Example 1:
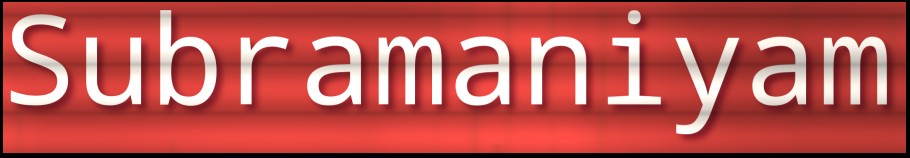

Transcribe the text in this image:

Subramaniyam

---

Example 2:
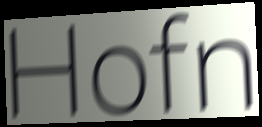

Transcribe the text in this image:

Hofn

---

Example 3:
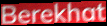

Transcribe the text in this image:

Berekhat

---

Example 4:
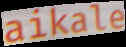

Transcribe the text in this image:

aikale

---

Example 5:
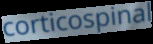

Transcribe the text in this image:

corticospinal